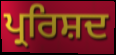
ਪ੍ਰਰਿਸ਼ਦ